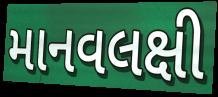
માનવલક્ષી